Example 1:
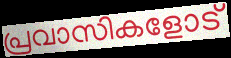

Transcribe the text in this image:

പ്രവാസികളോട്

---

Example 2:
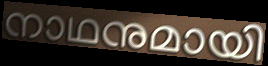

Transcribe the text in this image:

നാഥനുമായി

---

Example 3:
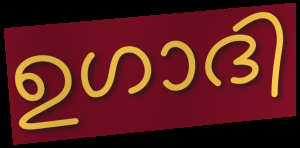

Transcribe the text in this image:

ഉഗാദി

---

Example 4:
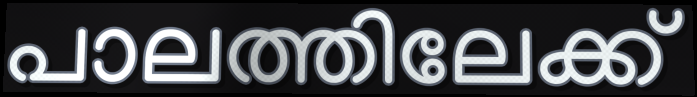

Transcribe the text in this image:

പാലത്തിലേക്ക്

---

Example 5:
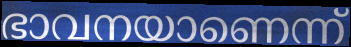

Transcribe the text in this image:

ഭാവനയാണെന്ന്